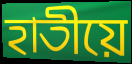
হাতীয়ে